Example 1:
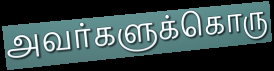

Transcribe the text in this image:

அவர்களுக்கொரு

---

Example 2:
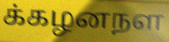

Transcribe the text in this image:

க்கழனநள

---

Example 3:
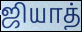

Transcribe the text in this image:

ஜியாத்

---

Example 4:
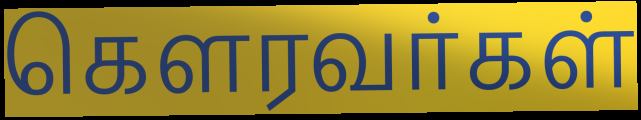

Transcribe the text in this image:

கெளரவர்கள்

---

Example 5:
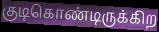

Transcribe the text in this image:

குடிகொண்டிருக்கிற